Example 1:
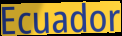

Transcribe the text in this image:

Ecuador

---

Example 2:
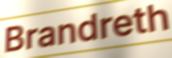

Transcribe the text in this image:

Brandreth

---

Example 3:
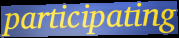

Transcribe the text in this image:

participating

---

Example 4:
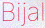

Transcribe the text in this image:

Bijal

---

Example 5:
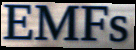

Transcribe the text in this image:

EMFs